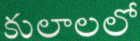
కులాలలో